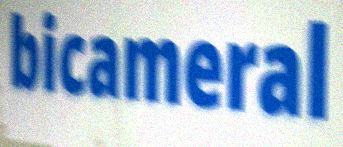
bicameral